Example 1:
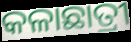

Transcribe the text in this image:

କଳାଛାତ୍ରୀ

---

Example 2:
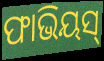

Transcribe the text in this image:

ଫାଭିୟସ୍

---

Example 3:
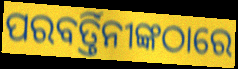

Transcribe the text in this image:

ପରବର୍ତ୍ତିନୀଙ୍କଠାରେ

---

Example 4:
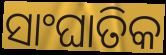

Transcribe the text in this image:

ସାଂଘାତିକ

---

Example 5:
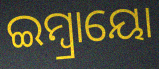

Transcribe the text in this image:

ଇମ୍ବ୍ରାୟୋ